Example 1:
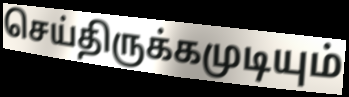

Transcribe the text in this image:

செய்திருக்கமுடியும்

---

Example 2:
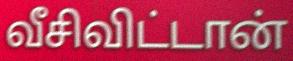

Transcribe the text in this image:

வீசிவிட்டான்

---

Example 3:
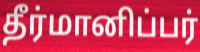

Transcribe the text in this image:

தீர்மானிப்பர்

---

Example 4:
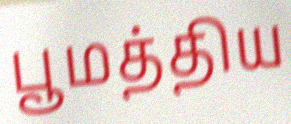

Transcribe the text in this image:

பூமத்திய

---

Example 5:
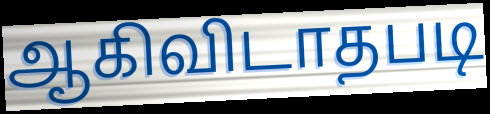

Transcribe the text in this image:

ஆகிவிடாதபடி